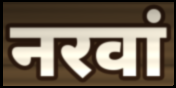
नरवां